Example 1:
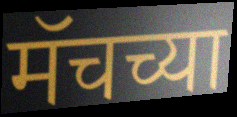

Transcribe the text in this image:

मॅचच्या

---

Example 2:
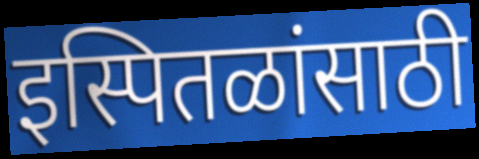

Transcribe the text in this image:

इस्पितळांसाठी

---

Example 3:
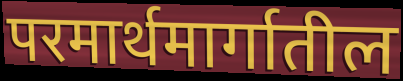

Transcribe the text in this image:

परमार्थमार्गातील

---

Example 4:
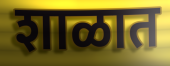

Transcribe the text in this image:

शाळात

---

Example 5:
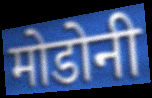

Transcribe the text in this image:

मोडोनी